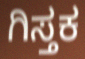
ಗಿಸ್ತಕ